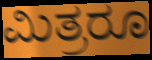
ಮಿತ್ರರೂ